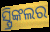
ସ୍ପ୍ରିଙ୍କଲର